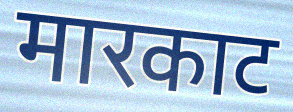
मारकाट